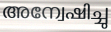
അന്വേഷിച്ചു